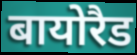
बायोरैड